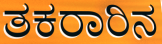
ತಕರಾರಿನ